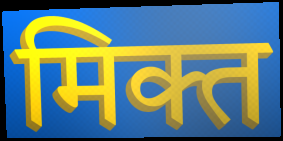
मिक्त